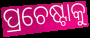
ପ୍ରଚେଷ୍ଟାକୁ